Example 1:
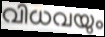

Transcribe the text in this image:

വിധവയും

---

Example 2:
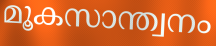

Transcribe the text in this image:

മൂകസാന്ത്വനം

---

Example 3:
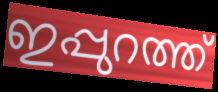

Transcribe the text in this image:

ഇപ്പുറത്ത്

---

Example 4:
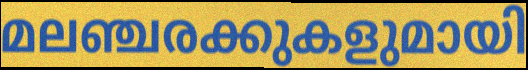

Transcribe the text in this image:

മലഞ്ചരക്കുകളുമായി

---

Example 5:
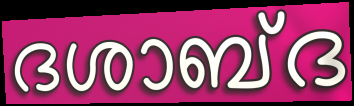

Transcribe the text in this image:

ദശാബ്ദ